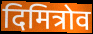
दिमित्रोव